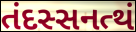
તંદસ્સનત્થં